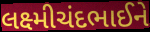
લક્ષ્મીચંદભાઈને